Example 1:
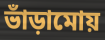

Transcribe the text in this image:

ভাঁড়ামোয়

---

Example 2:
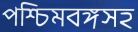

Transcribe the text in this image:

পশ্চিমবঙ্গসহ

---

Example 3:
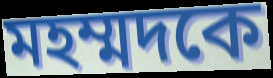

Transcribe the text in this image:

মহম্মদকে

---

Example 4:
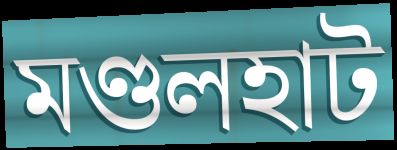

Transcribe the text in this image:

মণ্ডলহাট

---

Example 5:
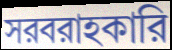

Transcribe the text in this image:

সরবরাহকারি